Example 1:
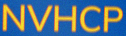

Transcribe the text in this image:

NVHCP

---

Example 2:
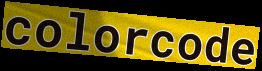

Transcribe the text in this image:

colorcode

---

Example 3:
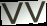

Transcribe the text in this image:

vv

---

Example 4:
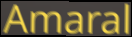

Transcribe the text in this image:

Amaral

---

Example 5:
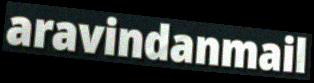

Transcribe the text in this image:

aravindanmail